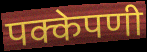
पक्केपणी